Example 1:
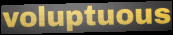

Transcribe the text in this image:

voluptuous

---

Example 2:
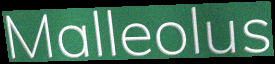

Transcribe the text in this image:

Malleolus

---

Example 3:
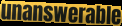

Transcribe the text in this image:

unanswerable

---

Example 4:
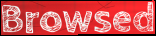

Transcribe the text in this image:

Browsed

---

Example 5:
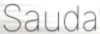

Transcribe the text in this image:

Sauda